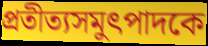
প্রতীত্যসমুৎপাদকে